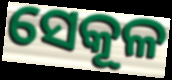
ସେକୂଳ